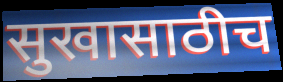
सुखासाठीच